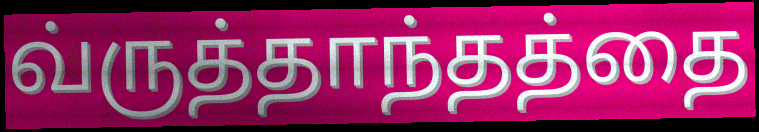
வ்ருத்தாந்தத்தை